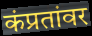
कंप्रतांवर